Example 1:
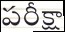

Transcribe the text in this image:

పరీక్షా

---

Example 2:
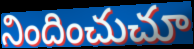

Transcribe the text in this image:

నిందించుచూ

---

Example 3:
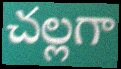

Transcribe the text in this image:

చల్లగా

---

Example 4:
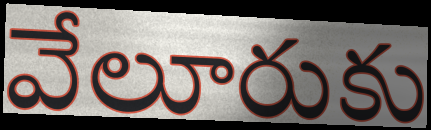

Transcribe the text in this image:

వేలూరుకు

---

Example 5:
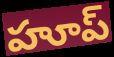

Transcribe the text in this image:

హూప్